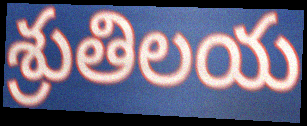
శ్రుతిలయ